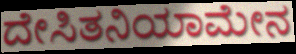
ದೇಸಿತನಿಯಾಮೇನ